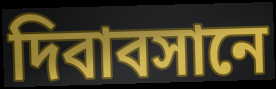
দিবাবসানে